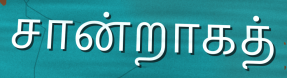
சான்றாகத்